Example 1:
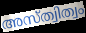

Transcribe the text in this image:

അസ്ത്വിത്വം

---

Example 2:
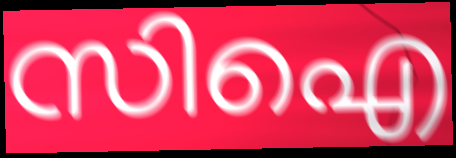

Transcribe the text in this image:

സിഐ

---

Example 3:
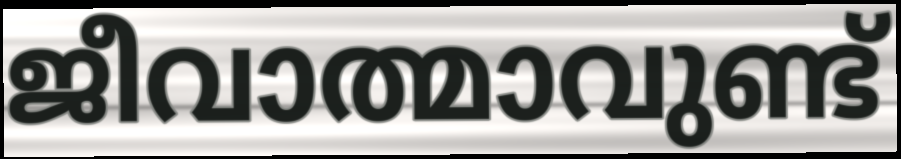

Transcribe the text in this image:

ജീവാത്മാവുണ്ട്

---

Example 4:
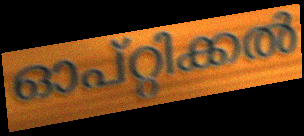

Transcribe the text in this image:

ഓപ്റ്റിക്കൽ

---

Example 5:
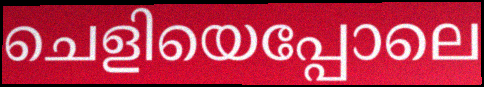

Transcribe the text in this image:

ചെളിയെപ്പോലെ